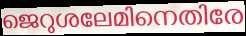
ജെറുശലേമിനെതിരേ